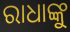
ରାଧାଙ୍କୁ